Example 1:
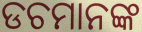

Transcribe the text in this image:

ଡଚମାନଙ୍କ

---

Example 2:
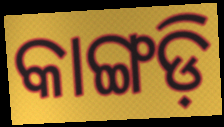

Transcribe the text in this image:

କାଙ୍ଗଡ଼ି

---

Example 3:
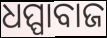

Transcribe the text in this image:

ଧପ୍ପାବାଜ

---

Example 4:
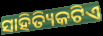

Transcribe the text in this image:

ସାହିତ୍ୟିକଟିଏ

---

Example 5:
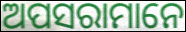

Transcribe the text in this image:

ଅପସରାମାନେ